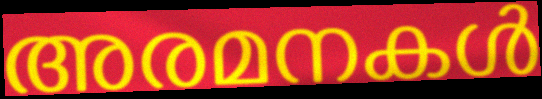
അരമനകൾ